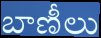
బాణీలు